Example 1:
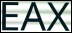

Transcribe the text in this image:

EAX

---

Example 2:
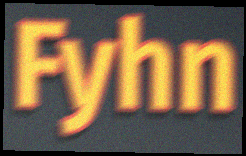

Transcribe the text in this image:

Fyhn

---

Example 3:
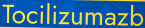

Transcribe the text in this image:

Tocilizumazb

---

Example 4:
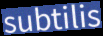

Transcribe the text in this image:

subtilis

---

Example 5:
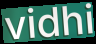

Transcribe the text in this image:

vidhi